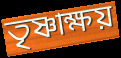
তৃষ্ণাক্ষয়